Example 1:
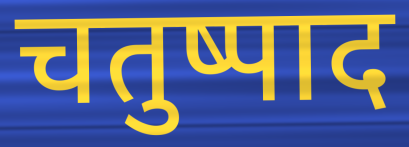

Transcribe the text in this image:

चतुष्पाद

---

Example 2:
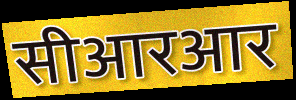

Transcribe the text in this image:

सीआरआर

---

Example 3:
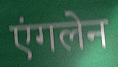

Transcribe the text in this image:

एंगलेन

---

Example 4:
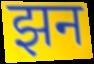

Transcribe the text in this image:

झन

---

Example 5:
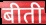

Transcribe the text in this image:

बीती